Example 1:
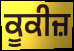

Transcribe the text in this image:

ਕੂਕੀਜ਼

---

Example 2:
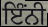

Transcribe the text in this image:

ਇੰਂਨੀ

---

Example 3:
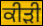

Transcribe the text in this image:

ਕੀੜੀ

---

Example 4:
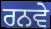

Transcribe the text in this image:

ਰਨਵੇ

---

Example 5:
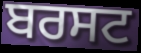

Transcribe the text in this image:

ਬਰਸਟ